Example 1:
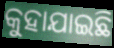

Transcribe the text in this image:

କୁହାଯାଇଛି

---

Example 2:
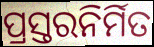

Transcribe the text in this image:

ପ୍ରସ୍ତରନିର୍ମିତ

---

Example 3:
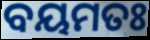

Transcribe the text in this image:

ବୟମତଃ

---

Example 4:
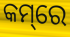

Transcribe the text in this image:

କମ୍‌ରେ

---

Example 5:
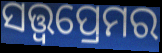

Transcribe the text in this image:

ସତ୍ତ୍ୱପ୍ରେମର